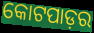
କୋଟପାଡ଼ର